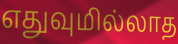
எதுவுமில்லாத